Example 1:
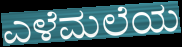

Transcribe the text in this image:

ಎಳೆಮಲೆಯ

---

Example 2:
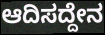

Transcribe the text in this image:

ಆದಿಸದ್ದೇನ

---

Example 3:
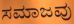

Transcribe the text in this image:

ಸಮಾಜವು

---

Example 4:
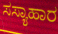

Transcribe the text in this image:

ಸಸ್ಯಾಹಾರ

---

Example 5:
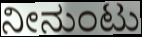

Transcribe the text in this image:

ನೀನುಂಟು